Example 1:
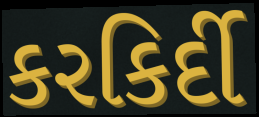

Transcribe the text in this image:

કરકિર્દી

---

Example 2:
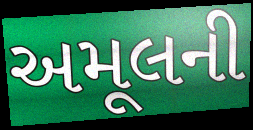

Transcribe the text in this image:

અમૂલની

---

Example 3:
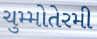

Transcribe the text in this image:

ચુમ્મોતેરમી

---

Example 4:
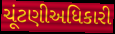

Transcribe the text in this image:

ચૂંટણીઅધિકારી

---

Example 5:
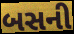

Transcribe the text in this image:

બસની